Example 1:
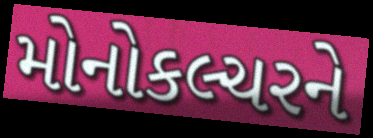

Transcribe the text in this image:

મોનોકલ્ચરને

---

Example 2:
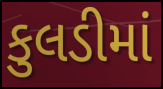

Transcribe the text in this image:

કુલડીમાં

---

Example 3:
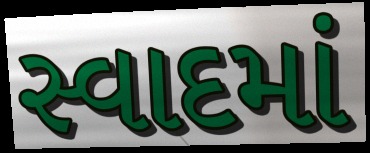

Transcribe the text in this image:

સ્વાદમાં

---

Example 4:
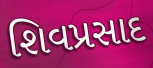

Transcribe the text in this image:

શિવપ્રસાદ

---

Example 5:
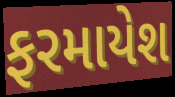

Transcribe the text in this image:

ફરમાયેશ